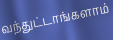
வந்துட்டாங்களாம்